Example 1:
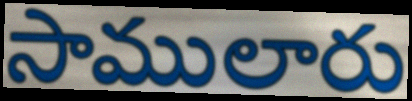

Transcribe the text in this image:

సాములారు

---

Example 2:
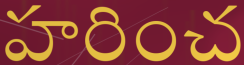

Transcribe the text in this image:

హరించ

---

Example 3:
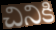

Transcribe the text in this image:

చినికి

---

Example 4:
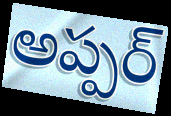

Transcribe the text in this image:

అప్పర్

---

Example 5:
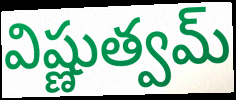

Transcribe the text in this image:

విష్ణుత్వమ్